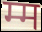
म्म